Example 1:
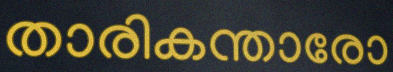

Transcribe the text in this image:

താരികന്താരോ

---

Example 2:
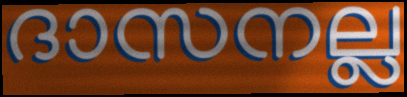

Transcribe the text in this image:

ദാസനല്ല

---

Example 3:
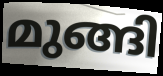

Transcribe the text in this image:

മുങ്ങി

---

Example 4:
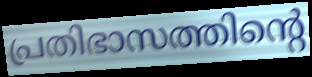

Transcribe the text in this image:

പ്രതിഭാസത്തിന്റെ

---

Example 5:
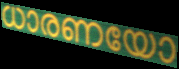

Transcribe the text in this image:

ധാരണയോ